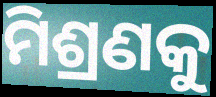
ମିଶ୍ରଣକୁ